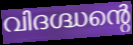
വിദഗ്ദ്ധന്റെ